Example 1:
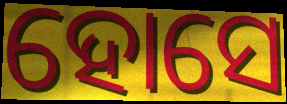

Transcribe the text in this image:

ହୋସେ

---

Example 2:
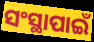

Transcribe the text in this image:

ସଂସ୍ଥାପାଇଁ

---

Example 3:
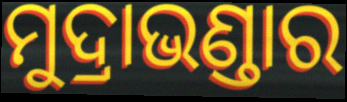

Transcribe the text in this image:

ମୁଦ୍ରାଭଣ୍ଡାର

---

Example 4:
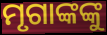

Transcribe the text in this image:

ମୃଗାଙ୍କଙ୍କୁ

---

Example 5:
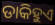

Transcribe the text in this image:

ଡାକିହୁଏ